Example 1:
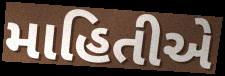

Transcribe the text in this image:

માહિતીએ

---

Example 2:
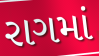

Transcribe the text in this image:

રાગમાં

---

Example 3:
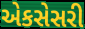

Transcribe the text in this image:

એકસેસરી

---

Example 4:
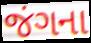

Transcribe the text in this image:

જંગના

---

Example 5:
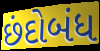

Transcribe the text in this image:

છંદોબંધ